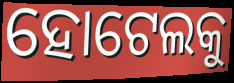
ହୋଟେଲକୁ